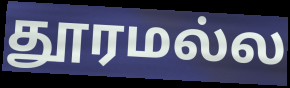
தூரமல்ல